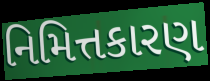
નિમિત્તકારણ